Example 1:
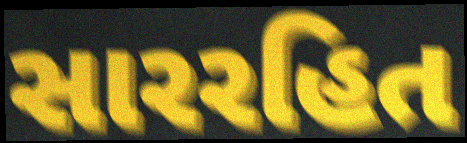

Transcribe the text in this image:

સારરહિત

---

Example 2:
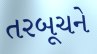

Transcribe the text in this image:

તરબૂચને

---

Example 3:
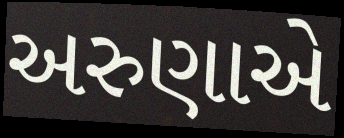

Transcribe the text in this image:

અરુણાએ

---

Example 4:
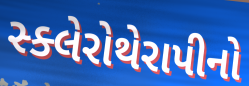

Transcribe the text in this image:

સ્ક્લેરોથેરાપીનો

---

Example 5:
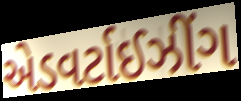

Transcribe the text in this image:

એડવર્ટાઈઝીંગ